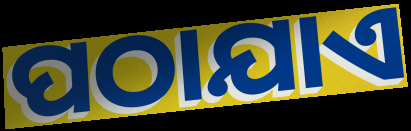
ପଠାଯାଏ